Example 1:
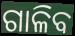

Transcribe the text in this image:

ଗାଳିବ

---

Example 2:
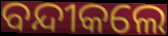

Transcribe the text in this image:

ବନ୍ଦୀକଲେ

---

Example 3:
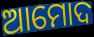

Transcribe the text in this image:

ଆମୋଦ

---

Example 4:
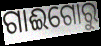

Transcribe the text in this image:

ଗାଈଗୋରୁ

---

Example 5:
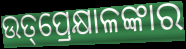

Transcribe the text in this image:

ଉତ୍‌ପ୍ରେକ୍ଷାଳଙ୍କାର